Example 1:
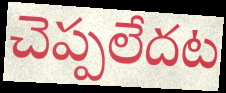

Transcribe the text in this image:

చెప్పలేదట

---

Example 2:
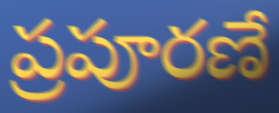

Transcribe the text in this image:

ప్రపూరణే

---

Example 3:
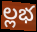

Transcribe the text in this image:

ల్లభ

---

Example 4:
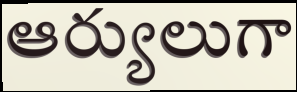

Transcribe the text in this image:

ఆర్యులుగా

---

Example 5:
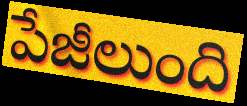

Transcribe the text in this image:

పేజీలుంది